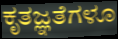
ಕೃತಜ್ಞತೆಗಳೂ